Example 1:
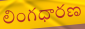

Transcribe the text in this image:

లింగధారణ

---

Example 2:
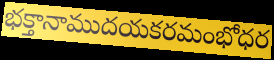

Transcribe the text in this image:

భక్తానాముదయకరమంభోధర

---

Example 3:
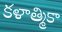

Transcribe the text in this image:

కళాత్మికా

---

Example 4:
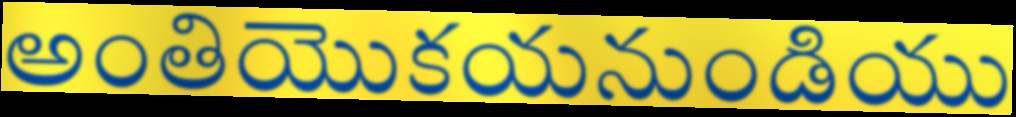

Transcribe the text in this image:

అంతియొకయనుండియు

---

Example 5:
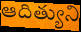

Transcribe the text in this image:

ఆదిత్యుని